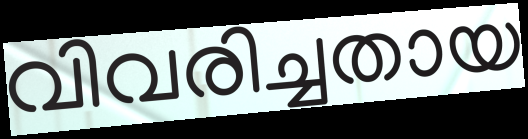
വിവരിച്ചതായ